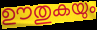
ഊതുകയും